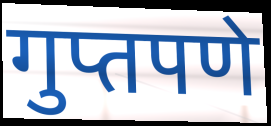
गुप्तपणे